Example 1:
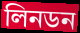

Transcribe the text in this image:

লিনডন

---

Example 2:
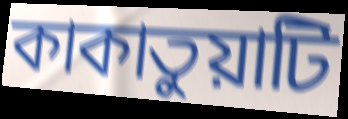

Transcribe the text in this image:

কাকাতুয়াটি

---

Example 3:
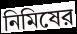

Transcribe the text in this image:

নিমিষের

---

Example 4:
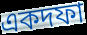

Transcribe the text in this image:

একদফা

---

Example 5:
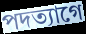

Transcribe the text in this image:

পদত্যাগে